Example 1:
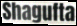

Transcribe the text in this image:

Shagufta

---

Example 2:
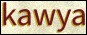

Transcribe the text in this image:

kawya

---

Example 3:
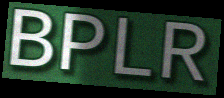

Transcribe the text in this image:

BPLR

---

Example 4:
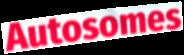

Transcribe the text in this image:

Autosomes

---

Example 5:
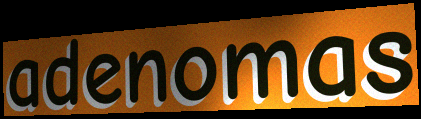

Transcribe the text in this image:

adenomas